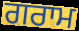
ਗਰਾਮ